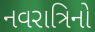
નવરાત્રિનો